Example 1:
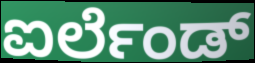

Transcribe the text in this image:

ಐರ್ಲೆಂಡ್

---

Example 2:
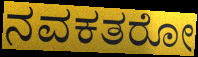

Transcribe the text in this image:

ನವಕತರೋ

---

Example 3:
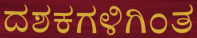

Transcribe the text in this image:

ದಶಕಗಳಿಗಿಂತ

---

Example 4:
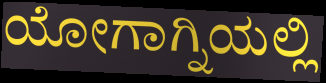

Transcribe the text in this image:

ಯೋಗಾಗ್ನಿಯಲ್ಲಿ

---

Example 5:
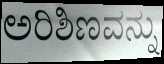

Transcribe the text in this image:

ಅರಿಶಿಣವನ್ನು